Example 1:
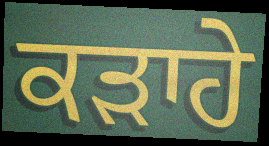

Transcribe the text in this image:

ਕੜਾਹੇ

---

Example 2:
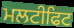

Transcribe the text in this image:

ਮਲਟੀਫਿਟ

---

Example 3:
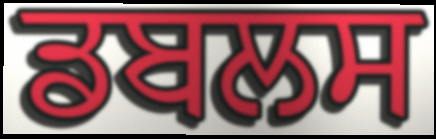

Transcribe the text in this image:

ਡਬਲਸ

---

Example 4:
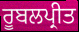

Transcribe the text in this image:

ਰੂਬਲਪ੍ਰੀਤ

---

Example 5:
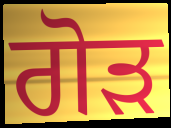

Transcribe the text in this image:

ਗੋੜ